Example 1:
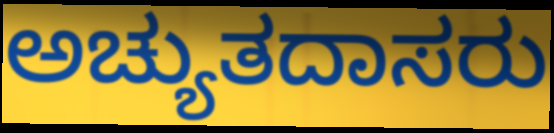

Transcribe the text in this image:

ಅಚ್ಯುತದಾಸರು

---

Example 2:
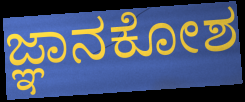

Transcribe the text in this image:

ಜ್ಞಾನಕೋಶ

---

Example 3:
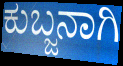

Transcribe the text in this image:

ಕುಬ್ಜನಾಗಿ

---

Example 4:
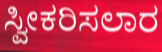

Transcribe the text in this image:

ಸ್ವೀಕರಿಸಲಾರ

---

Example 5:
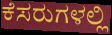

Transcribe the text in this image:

ಕೆಸರುಗಳಲ್ಲಿ